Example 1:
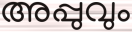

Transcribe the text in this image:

അപ്പുവും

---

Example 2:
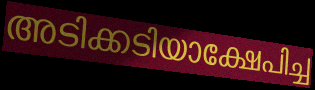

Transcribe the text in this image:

അടിക്കടിയാക്ഷേപിച്ച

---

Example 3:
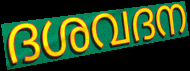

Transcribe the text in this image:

ദശവദന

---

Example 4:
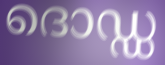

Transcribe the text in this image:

ദൊഡ്ഡ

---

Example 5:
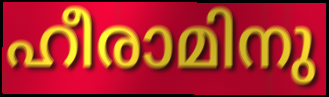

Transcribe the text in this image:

ഹീരാമിനു